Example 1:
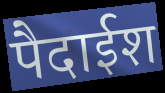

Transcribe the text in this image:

पैदाईश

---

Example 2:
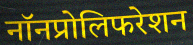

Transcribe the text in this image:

नॉनप्रोलिफरेशन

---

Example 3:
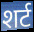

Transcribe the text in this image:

शर्ट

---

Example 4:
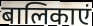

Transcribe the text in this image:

बालिकाएं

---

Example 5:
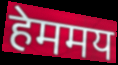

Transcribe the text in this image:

हेममय